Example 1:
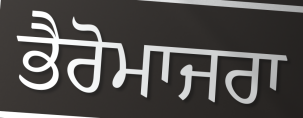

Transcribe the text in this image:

ਭੈਰੋਮਾਜਰਾ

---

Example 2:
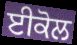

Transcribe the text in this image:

ਈਕੋਲ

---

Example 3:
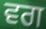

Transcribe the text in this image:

ਵਗ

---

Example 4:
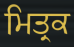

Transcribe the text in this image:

ਮਿਤ੍ਰਕ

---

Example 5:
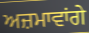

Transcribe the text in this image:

ਅਜ਼ਮਾਵਾਂਗੇ